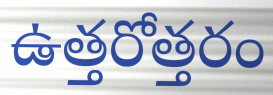
ఉత్తరోత్తరం